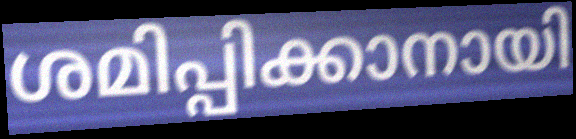
ശമിപ്പിക്കാനായി